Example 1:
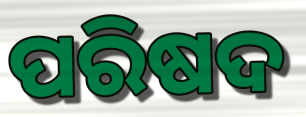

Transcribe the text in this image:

ପରିଷଦ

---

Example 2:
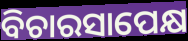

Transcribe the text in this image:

ବିଚାରସାପେକ୍ଷ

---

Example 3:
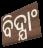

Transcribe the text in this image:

ବିଦ୍ଯାଂ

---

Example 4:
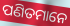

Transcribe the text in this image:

ପଣିତମାନେ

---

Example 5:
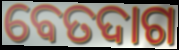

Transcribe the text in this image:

ବେତଦାଗ